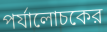
পর্যালোচকের